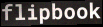
flipbook